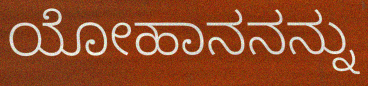
ಯೋಹಾನನನ್ನು